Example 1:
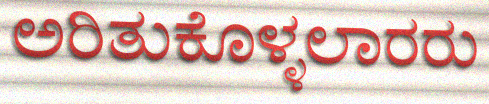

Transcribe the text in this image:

ಅರಿತುಕೊಳ್ಳಲಾರರು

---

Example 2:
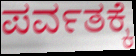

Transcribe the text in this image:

ಪರ್ವತಕ್ಕೆ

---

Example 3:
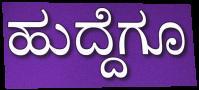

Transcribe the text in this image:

ಹುದ್ದೆಗೂ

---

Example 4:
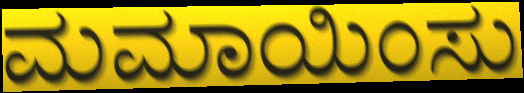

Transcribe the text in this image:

ಮಮಾಯಿಂಸು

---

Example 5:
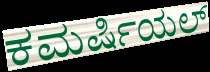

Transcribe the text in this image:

ಕಮರ್ಷಿಯಲ್